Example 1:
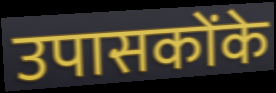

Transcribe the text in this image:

उपासकोंके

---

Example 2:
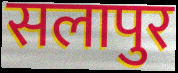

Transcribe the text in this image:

सलापुर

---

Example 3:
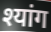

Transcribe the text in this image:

श्यांग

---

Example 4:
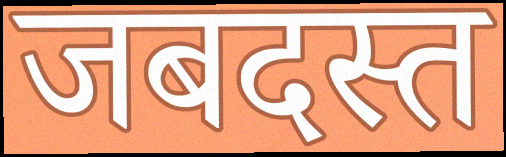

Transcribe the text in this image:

जबदस्त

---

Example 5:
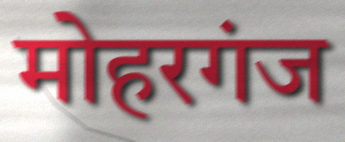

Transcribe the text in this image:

मोहरगंज